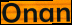
Onan